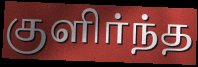
குளிர்ந்த